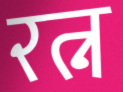
रत्न